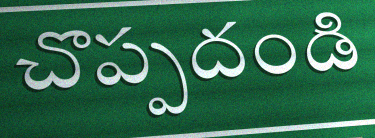
చొప్పదండి